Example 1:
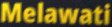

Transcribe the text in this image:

Melawati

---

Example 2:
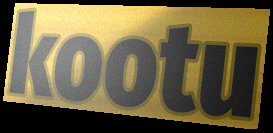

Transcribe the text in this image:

kootu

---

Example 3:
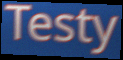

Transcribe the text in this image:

Testy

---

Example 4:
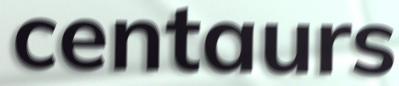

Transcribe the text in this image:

centaurs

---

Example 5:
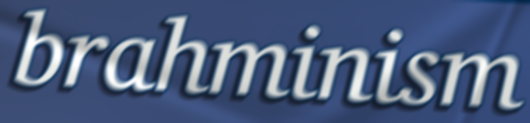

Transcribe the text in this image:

brahminism